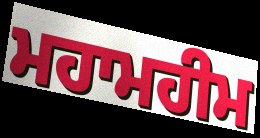
ਮਹਾਮਹੀਮ